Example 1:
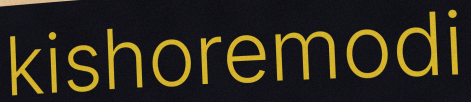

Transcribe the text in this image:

kishoremodi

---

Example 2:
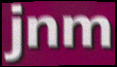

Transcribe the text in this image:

jnm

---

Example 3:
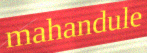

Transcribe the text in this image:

mahandule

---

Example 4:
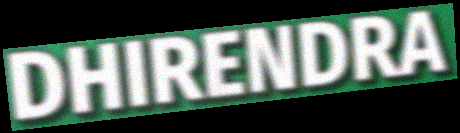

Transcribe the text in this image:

DHIRENDRA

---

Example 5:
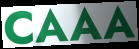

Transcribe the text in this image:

CAAA